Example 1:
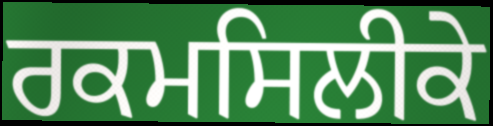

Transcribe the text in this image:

ਰਕਮਸਿਲੀਕੇ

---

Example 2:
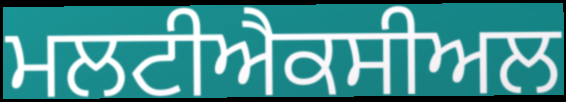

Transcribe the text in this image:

ਮਲਟੀਐਕਸੀਅਲ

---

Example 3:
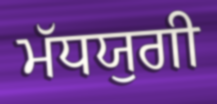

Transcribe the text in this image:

ਮੱਧਯੁਗੀ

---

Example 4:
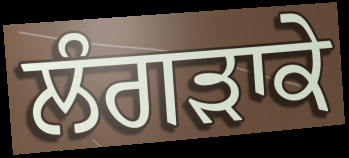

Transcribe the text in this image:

ਲੰਗੜਾਕੇ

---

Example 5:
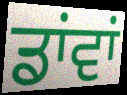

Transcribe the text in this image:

ਡਾਂਵਾਂ